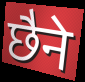
छैने